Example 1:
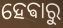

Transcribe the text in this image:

ହେଵାରୁ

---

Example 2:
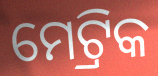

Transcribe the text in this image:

ମେଟ୍ରିକ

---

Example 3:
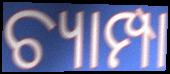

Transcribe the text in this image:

ଚ୍ୟାମ୍ପା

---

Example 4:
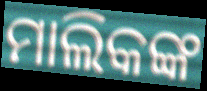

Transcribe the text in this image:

ମାଲିକଙ୍କ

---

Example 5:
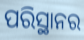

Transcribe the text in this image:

ପରିସ୍ଥାନର